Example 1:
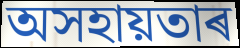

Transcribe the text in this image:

অসহায়তাৰ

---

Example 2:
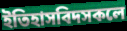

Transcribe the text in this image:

ইতিহাসবিদসকলে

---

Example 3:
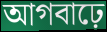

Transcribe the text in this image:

আগবাঢ়ে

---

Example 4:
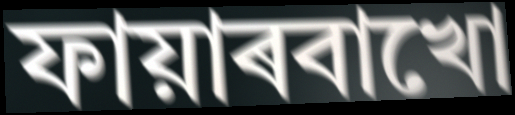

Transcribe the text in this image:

ফায়াৰবাখো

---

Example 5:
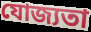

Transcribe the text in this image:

যোজ্যতা